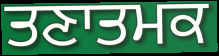
ਤਣਾਤਮਕ